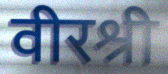
वीरश्री